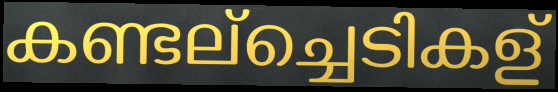
കണ്ടല്ച്ചെടികള്